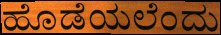
ಹೊಡೆಯಲೆಂದು